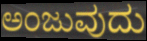
ಅಂಜುವುದು